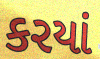
કરયાં